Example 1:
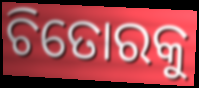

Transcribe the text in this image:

ଚିତୋରକୁ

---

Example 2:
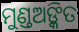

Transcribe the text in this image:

ମୁଣ୍ଡଅଙ୍କିତ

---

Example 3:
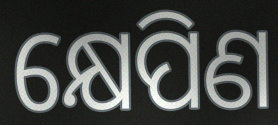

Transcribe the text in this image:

କ୍ଷେପିଣ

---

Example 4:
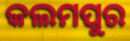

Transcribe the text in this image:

କଲମପୁର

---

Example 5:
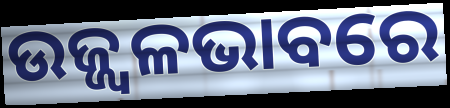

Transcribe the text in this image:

ଉଜ୍ଜ୍ୱଳଭାବରେ